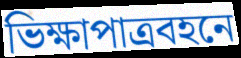
ভিক্ষাপাত্রবহনে